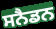
ਸਨੈਡਨ